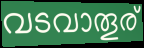
വടവാതൂര്